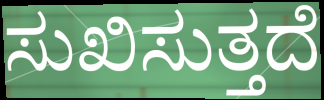
ಸುಖಿಸುತ್ತದೆ